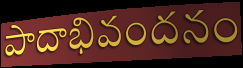
పాదాభివందనం